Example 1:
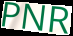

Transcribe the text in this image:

PNR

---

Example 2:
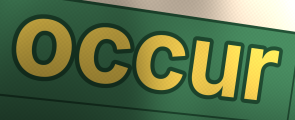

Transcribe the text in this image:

occur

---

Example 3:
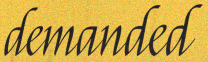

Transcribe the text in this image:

demanded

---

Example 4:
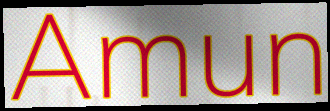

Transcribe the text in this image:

Amun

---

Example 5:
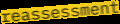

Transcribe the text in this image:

reassessment